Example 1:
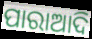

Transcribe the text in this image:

ପାରାଆଦି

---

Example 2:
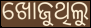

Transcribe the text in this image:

ଖୋଜୁଥିଲୁ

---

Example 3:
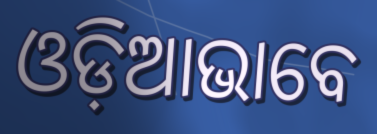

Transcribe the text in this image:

ଓଡ଼ିଆଭାବେ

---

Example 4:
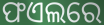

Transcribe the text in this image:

ଫଏଲରେ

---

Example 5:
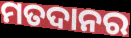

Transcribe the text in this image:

ମତଦାନର